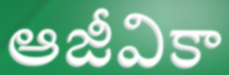
ఆజీవికా